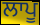
ਲਾਪੂ